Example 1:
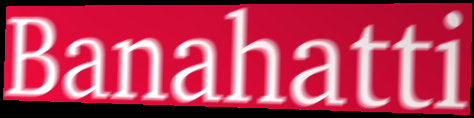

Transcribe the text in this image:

Banahatti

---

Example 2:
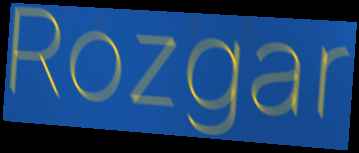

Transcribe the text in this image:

Rozgar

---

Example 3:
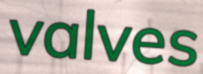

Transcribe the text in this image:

valves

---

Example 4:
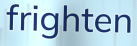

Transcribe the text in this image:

frighten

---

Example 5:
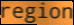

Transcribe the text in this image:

region